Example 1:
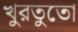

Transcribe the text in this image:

খুরতুতো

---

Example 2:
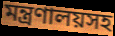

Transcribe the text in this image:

মন্ত্রণালয়সহ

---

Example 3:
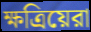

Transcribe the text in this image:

ক্ষত্রিয়েরা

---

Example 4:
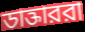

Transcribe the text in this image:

ডাক্তাররা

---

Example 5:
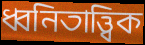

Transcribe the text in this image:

ধ্বনিতাত্ত্বিক